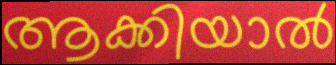
ആക്കിയാൽ